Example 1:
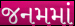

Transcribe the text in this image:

જનમમાં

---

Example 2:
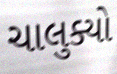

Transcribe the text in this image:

ચાલુક્યો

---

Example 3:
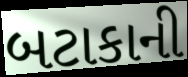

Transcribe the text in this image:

બટાકાની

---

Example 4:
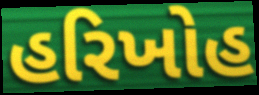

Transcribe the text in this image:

હરિખોહ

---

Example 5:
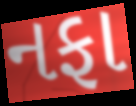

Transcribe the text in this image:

નફા